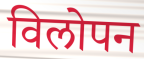
विलोपन